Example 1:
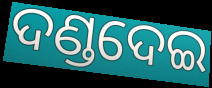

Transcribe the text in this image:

ଦଣ୍ଡଦେଇ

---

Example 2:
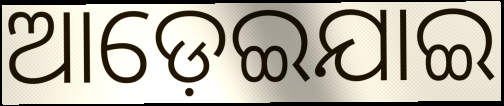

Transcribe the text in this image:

ଆଡ଼େଇଯାଇ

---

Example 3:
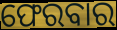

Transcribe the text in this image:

ଫେରବାର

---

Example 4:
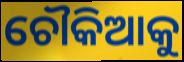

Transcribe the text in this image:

ଚୌକିଆକୁ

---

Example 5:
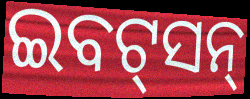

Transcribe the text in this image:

ଇବଟ୍‌ସନ୍